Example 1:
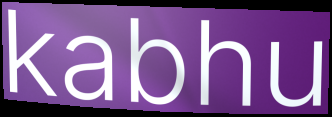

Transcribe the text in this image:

kabhu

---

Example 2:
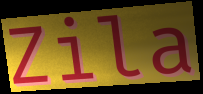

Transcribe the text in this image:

Zila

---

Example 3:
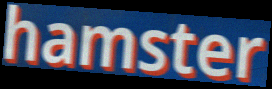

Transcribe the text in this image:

hamster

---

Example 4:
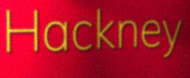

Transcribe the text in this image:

Hackney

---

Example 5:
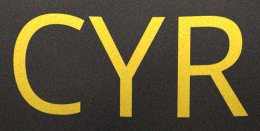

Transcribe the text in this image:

CYR